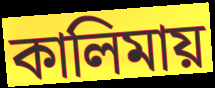
কালিমায়